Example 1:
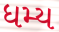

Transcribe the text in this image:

ધમ્ય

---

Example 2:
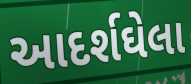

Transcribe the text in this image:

આદર્શઘેલા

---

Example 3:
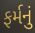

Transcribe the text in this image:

ફર્મનું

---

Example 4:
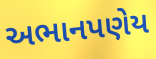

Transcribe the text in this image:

અભાનપણેય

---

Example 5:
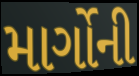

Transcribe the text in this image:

માર્ગોની